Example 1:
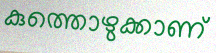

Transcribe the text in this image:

കുത്തൊഴുക്കാണ്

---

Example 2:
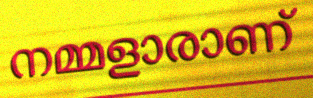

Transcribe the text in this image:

നമ്മളാരാണ്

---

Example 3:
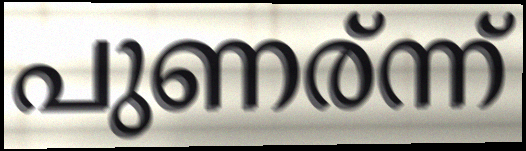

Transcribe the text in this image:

പുണര്ന്ന്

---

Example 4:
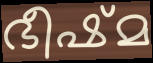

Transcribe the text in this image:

ഭീഷ്മ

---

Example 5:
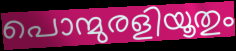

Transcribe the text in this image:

പൊന്മുരളിയൂതും